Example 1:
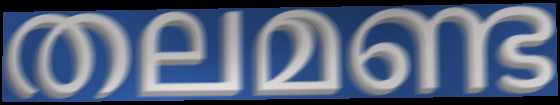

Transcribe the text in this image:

തലമണ്ട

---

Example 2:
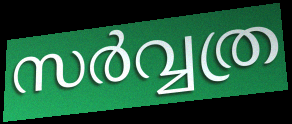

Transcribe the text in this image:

സർവ്വത്ര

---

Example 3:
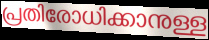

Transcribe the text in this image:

പ്രതിരോധിക്കാനുള്ള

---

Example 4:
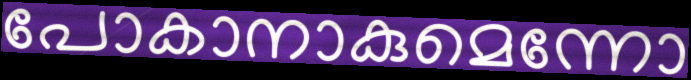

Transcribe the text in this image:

പോകാനാകുമെന്നോ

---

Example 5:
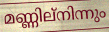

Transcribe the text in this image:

മണ്ണില്നിന്നും